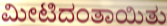
ಮೀಟಿದಂತಾಯಿತು